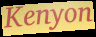
Kenyon